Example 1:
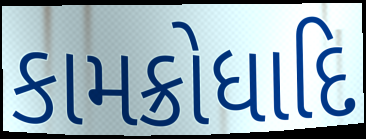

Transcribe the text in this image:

કામક્રોધાદિ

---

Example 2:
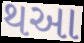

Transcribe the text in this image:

થઆ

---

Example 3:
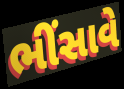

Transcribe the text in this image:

ભીંસાવે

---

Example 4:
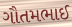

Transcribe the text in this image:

ગૌતમભાઈ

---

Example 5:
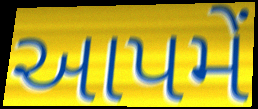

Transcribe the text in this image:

આપમેં